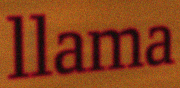
llama